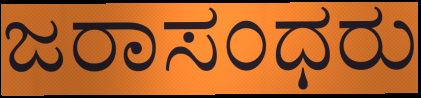
ಜರಾಸಂಧರು